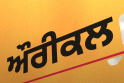
ਔਰੀਕਲ